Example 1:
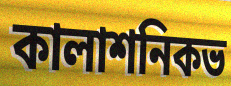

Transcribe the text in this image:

কালাশনিকভ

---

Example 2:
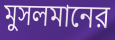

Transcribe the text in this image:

মুসলমানের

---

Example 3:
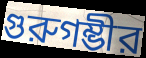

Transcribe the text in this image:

গুরুগম্ভীর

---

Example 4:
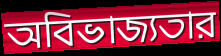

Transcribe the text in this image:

অবিভাজ্যতার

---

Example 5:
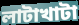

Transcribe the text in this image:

লাটাখাটা